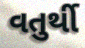
વતુર્થી